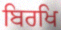
ਬਿਰਖਿ